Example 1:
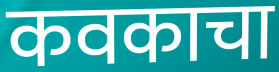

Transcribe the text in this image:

कवकाचा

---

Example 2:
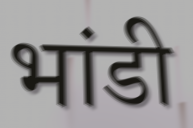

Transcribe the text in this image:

भांडी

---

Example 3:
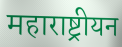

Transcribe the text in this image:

महाराष्ट्रीयन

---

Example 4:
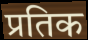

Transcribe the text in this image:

प्रतिक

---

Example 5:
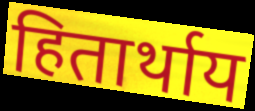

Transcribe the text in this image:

हितार्थाय